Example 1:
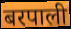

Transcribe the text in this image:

बरपाली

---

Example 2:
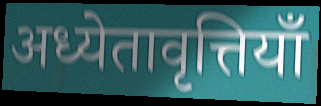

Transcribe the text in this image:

अध्येतावृत्तियाँ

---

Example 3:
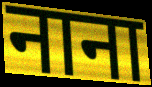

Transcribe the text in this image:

नाना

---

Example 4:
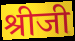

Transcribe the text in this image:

श्रीजी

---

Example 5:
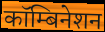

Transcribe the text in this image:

कॉम्बिनेशन